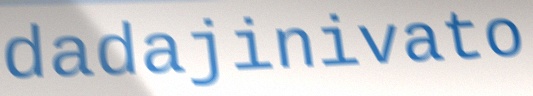
dadajinivato